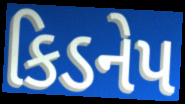
કિડનેપ